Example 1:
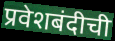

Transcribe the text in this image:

प्रवेशबंदीची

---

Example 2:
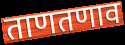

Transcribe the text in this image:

ताणतणाव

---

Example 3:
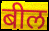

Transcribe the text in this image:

बील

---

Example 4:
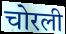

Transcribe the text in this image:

चोरली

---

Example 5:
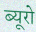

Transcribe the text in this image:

ब्यूरो